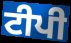
ਟੀਪੀ